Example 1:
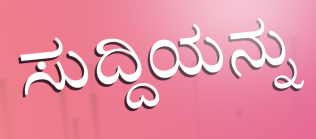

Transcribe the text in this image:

ಸುದ್ದಿಯನ್ನು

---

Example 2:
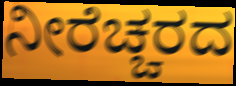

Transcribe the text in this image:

ನೀರೆಚ್ಚರದ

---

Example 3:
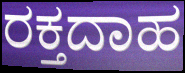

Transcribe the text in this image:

ರಕ್ತದಾಹ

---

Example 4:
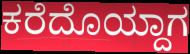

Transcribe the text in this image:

ಕರೆದೊಯ್ದಾಗ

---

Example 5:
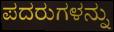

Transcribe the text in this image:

ಪದರುಗಳನ್ನು